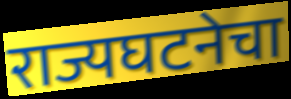
राज्यघटनेचा